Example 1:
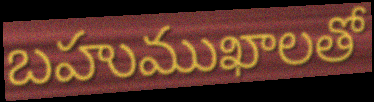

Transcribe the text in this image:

బహుముఖాలతో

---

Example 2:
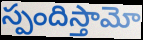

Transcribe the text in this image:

స్పందిస్తామో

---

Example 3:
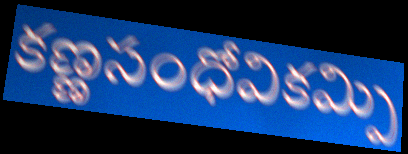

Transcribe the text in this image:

కణ్ణసంధోవికమ్పి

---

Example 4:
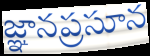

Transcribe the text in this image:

జ్ఞానప్రసూన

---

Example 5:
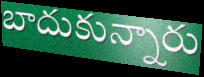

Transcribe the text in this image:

బాదుకున్నారు